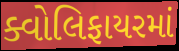
ક્વોલિફાયરમાં